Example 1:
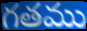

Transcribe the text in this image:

గతము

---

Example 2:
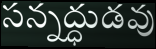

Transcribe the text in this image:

సన్నద్ధుడవు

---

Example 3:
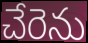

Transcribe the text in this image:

చేరెను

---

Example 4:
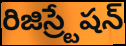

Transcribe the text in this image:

రిజిస్ర్టేషన్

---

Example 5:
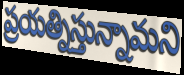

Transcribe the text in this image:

ప్రయత్నిస్తున్నామని